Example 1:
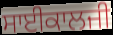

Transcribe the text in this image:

ਸਾਈਕਾਲਜੀ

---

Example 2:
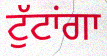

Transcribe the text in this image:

ਟੁੱਟਾਂਗਾ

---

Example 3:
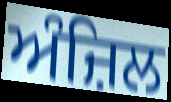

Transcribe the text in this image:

ਅੰਜ਼ਿਲ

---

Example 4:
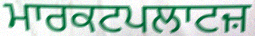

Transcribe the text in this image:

ਮਾਰਕਟਪਲਾਟਜ਼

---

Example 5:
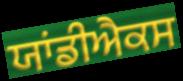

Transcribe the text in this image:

ਯਾਂਡੀਐਕਸ